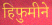
हिफुमीने